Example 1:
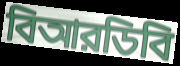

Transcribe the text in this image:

বিআরডিবি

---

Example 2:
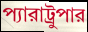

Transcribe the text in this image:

প্যারাট্রুপার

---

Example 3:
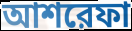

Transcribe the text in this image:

আশরেফা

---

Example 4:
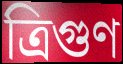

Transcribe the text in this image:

ত্রিগুণ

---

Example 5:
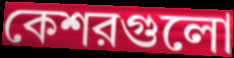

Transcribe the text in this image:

কেশরগুলো